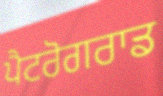
ਪੈਟਰੋਗਰਾਡ